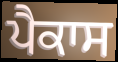
ਪੈਕਾਸ